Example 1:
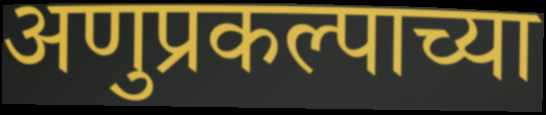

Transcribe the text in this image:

अणुप्रकल्पाच्या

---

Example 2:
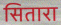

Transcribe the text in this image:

सितारा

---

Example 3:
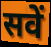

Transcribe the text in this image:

सवें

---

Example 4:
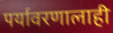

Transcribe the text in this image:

पर्यावरणालाही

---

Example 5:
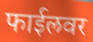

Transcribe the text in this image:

फाईलवर